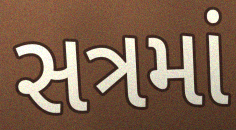
સત્રમાં